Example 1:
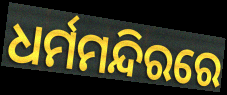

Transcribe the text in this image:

ଧର୍ମମନ୍ଦିରରେ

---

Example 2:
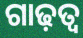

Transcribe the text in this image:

ଗାଢ଼ତ୍ବ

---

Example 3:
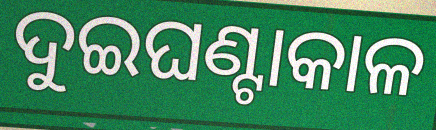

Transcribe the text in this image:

ଦୁଇଘଣ୍ଟାକାଳ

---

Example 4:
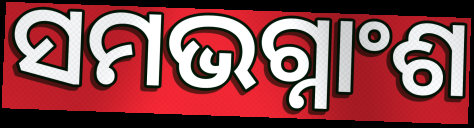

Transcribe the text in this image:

ସମଭଗ୍ନାଂଶ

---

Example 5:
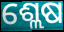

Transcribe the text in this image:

ଶ୍ଲେଷ